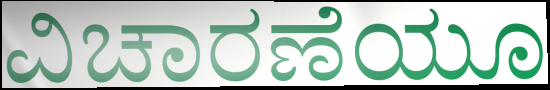
ವಿಚಾರಣೆಯೂ